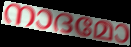
നാദമോ